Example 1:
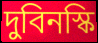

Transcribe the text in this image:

দুবিনস্কি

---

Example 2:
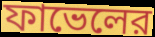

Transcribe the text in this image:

ফাভেলের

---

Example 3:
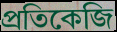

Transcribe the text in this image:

প্রতিকেজি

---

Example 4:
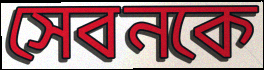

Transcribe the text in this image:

সেবনকে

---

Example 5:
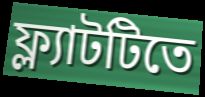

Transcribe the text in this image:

ফ্ল্যাটটিতে